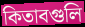
কিতাবগুলি